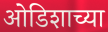
ओडिशाच्या